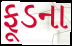
ફૂડના